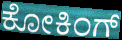
ಕೋಕಿಂಗ್